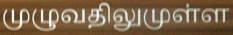
முழுவதிலுமுள்ள